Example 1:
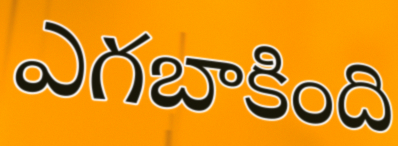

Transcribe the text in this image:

ఎగబాకింది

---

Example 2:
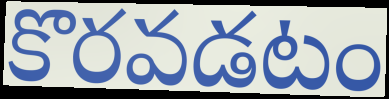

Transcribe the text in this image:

కొరవడటం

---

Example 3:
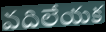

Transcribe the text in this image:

వదిలేయక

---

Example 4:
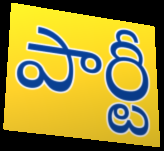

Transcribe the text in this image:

పార్టీ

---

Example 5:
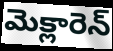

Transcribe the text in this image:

మెక్లారెన్